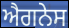
ਐਗਨੇਸ